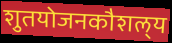
श्रुतयोजनकौशल्य